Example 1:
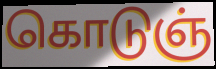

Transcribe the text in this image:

கொடுஞ்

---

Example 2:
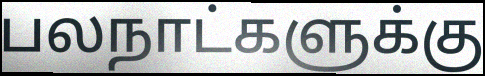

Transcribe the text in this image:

பலநாட்களுக்கு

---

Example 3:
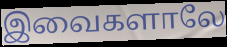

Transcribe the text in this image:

இவைகளாலே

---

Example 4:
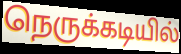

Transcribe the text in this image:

நெருக்கடியில்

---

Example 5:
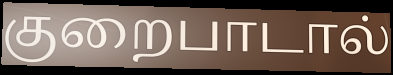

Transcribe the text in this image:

குறைபாடால்